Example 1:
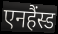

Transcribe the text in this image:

एनहैंस्ड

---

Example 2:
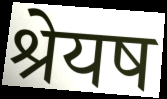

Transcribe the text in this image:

श्रेयष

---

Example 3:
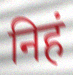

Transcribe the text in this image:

निहं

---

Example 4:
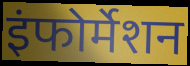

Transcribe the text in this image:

इंफोर्मेशन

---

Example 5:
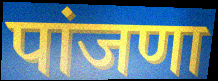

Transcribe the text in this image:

पांजणा